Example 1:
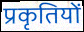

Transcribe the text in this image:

प्रकृतियों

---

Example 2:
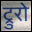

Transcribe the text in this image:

ट्रुरो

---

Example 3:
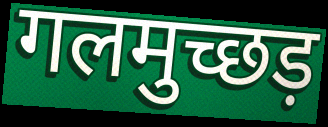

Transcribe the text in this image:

गलमुच्छड़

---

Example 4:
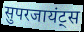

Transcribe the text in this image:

सुपरजायंट्स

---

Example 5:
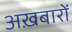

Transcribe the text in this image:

अख़बारों